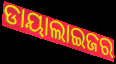
ଡାୟାଲାଇଜର